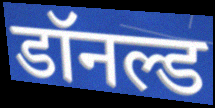
डॉनल्ड